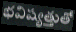
భవిష్యత్తుతో